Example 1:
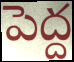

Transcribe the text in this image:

పెద్ద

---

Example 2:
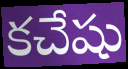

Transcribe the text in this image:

కచేషు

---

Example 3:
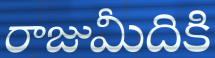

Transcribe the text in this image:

రాజుమీదికి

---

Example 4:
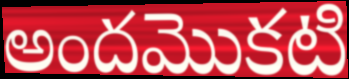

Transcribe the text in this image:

అందమొకటి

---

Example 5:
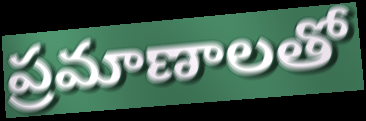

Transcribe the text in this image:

ప్రమాణాలతో